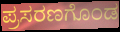
ಪ್ರಸರಣಗೊಂಡ